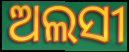
ଅଲସୀ